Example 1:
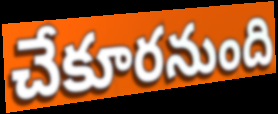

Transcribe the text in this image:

చేకూరనుంది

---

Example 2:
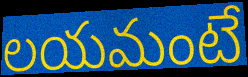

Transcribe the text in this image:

లయమంటే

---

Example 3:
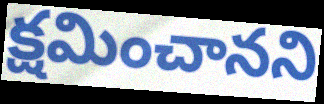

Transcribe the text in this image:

క్షమించానని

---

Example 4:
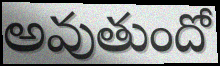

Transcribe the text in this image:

అవుతుందో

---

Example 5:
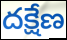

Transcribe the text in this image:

దక్షేణ